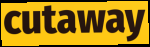
cutaway